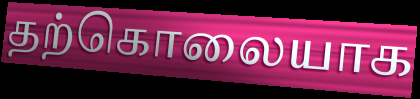
தற்கொலையாக